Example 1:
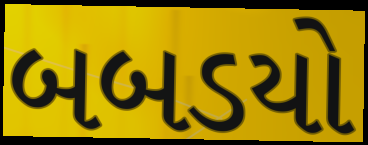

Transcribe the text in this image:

બબડયો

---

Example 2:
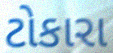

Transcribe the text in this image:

ટોકારા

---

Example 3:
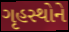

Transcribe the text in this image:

ગૃહસ્થોને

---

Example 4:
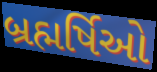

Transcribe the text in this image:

બ્રહ્મર્ષિઓ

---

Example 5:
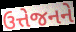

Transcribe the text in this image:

ઉત્તેજનને